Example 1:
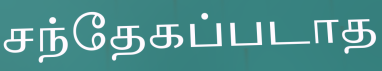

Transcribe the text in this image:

சந்தேகப்படாத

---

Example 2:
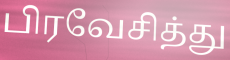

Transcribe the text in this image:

பிரவேசித்து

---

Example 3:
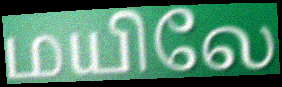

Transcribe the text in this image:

மயிலே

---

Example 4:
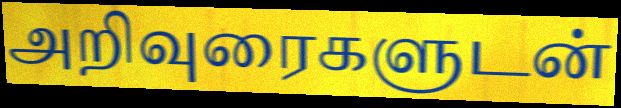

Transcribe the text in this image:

அறிவுரைகளுடன்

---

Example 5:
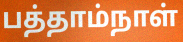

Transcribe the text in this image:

பத்தாம்நாள்